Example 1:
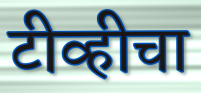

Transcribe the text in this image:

टीव्हीचा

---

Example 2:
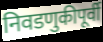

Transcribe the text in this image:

निवडणुकीपूर्वी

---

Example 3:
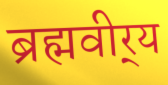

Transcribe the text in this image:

ब्रह्मवीर्य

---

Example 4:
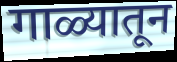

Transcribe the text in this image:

गाळ्यातून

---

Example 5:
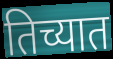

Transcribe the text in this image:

तिच्यात